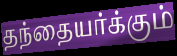
தந்தையர்க்கும்